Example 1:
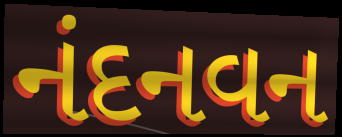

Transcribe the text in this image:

નંદનવન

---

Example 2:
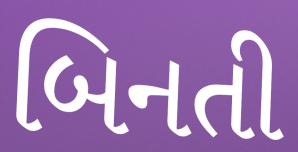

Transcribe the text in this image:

બિનતી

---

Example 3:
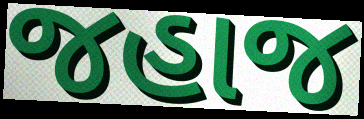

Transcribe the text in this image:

જહાજ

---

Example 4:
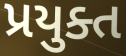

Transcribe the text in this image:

પ્રયુક્ત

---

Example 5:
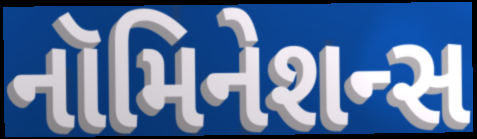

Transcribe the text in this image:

નૉમિનેશન્સ